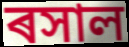
ৰসাল